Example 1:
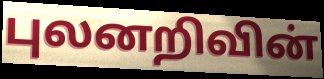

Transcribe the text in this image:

புலனறிவின்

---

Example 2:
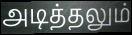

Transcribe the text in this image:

அடித்தலும்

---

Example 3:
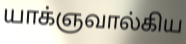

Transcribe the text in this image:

யாக்ஞவால்கிய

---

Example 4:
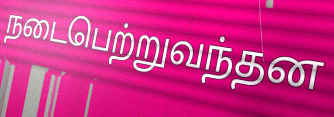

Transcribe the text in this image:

நடைபெற்றுவந்தன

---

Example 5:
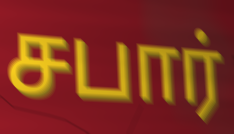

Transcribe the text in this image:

சபார்